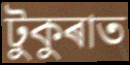
টুকুৰাত